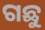
ଗଛୁ